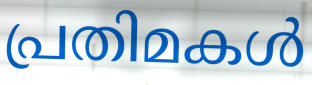
പ്രതിമകൾ